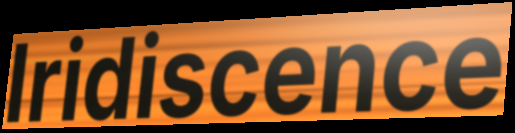
Iridiscence